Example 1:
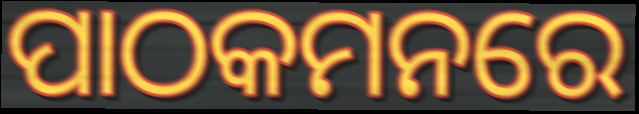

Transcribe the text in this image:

ପାଠକମନରେ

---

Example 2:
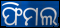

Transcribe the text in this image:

ଫିମଲ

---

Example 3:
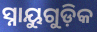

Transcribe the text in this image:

ସ୍ନାୟୁଗୁଡ଼ିକ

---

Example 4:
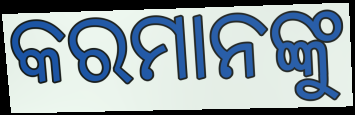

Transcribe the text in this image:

କରମାନଙ୍କୁ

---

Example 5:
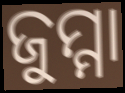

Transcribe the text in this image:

ଜୁମ୍ମା